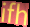
ifh